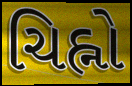
ચિહ્નો